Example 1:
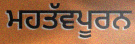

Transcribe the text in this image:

ਮਹਤੱਵਪੂਰਨ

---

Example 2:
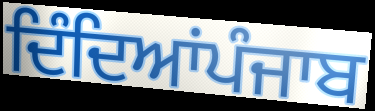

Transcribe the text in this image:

ਦਿੰਦਿਆਂਪੰਜਾਬ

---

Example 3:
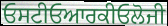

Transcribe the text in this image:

ਓਸਟੀਓਆਰਕੀਓਲੋਜੀ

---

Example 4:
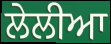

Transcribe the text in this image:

ਲੇਲੀਆ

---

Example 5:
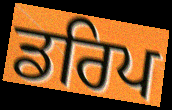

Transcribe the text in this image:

ਡਰਿਪ